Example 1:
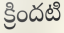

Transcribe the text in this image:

క్రిందటి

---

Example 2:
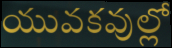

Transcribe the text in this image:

యువకవుల్లో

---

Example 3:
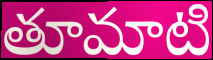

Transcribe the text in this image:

తూమాటి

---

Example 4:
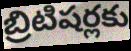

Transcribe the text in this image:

బ్రిటిషర్లకు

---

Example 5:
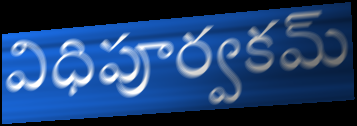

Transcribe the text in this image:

విధిపూర్వకమ్